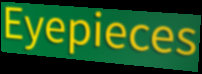
Eyepieces